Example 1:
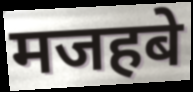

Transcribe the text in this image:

मजहबे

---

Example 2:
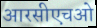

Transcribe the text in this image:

आरसीएचओ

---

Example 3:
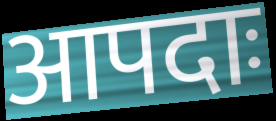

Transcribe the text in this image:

आपदाः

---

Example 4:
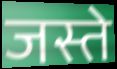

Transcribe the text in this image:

जस्ते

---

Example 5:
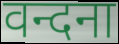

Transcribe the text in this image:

वन्दना